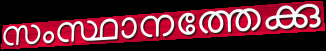
സംസ്ഥാനത്തേക്കു